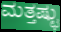
ಮತ್ತಷ್ಟು